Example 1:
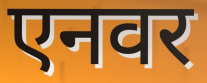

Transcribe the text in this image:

एनवर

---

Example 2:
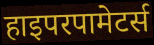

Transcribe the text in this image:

हाइपरपामेटर्स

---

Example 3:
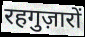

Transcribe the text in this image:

रहगुज़ारों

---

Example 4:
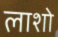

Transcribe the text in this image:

लाशो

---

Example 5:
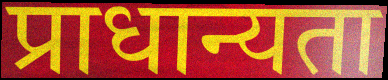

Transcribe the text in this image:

प्राधान्यता